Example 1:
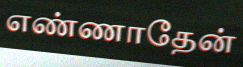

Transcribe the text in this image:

எண்ணாதேன்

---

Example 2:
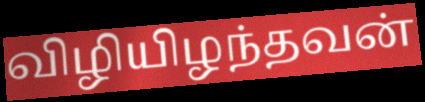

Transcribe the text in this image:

விழியிழந்தவன்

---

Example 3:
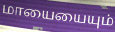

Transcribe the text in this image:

மாயையையும்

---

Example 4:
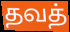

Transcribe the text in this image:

தவத்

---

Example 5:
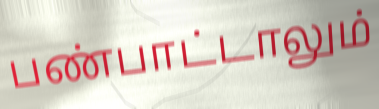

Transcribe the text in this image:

பண்பாட்டாலும்